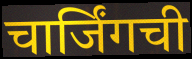
चार्जिंगची